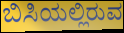
ಬಿಸಿಯಲ್ಲಿರುವ